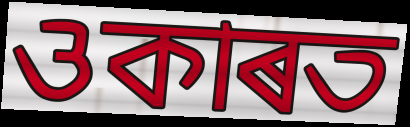
ওকাৰত